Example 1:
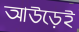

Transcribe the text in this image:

আউড়েই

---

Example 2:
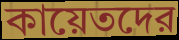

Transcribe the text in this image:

কায়েতদের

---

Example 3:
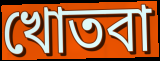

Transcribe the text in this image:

খোতবা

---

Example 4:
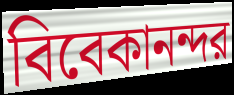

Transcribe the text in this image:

বিবেকানন্দর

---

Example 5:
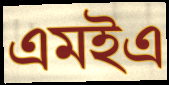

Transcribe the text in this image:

এমইএ